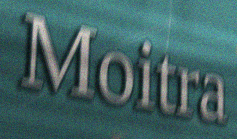
Moitra